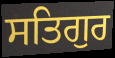
ਸਤਿਗੁਰ